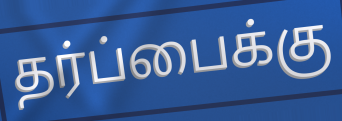
தர்ப்பைக்கு